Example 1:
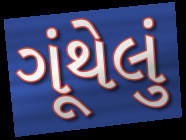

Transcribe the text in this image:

ગૂંથેલું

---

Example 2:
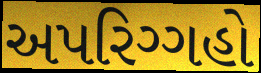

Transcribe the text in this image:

અપરિગ્ગહો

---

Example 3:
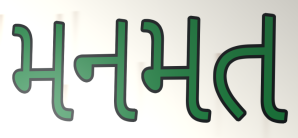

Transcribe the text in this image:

મનમત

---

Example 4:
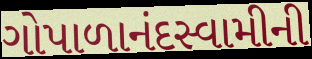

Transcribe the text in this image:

ગોપાળાનંદસ્વામીની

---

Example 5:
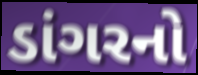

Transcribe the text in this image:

ડાંગરનો